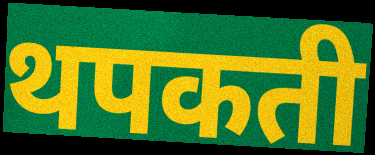
थपकती